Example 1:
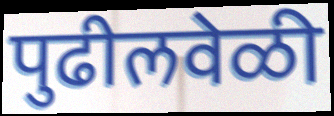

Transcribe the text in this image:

पुढीलवेळी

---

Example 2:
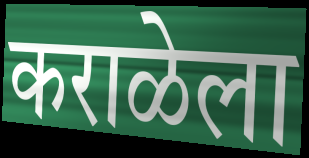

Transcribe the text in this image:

कराळेला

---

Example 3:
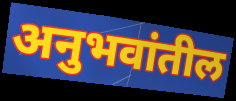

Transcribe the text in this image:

अनुभवांतील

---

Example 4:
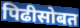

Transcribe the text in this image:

पिढीसोबत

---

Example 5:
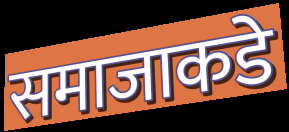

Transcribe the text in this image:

समाजाकडे